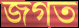
জগত